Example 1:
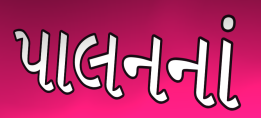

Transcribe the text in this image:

પાલનનાં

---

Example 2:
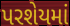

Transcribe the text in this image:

પરશેયમાં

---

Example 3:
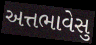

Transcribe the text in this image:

અત્તભાવેસુ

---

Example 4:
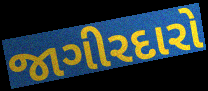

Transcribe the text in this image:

જાગીરદારો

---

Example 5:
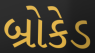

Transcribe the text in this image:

બ્રોકેડ